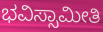
ಭವಿಸ್ಸಾಮೀತಿ